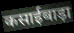
कसाईबाड़ा